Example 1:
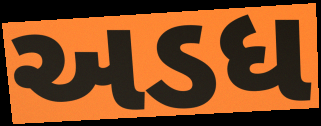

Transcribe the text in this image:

અડધ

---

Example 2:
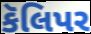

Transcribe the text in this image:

કૅલિપર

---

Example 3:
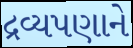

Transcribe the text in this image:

દ્રવ્યપણાને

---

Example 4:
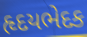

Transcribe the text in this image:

હૃદયભેદક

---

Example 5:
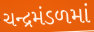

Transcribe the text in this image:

ચન્દ્રમંડળમાં